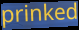
prinked